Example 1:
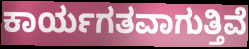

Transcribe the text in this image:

ಕಾರ್ಯಗತವಾಗುತ್ತಿವೆ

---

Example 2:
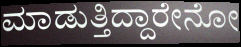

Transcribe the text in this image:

ಮಾಡುತ್ತಿದ್ದಾರೇನೋ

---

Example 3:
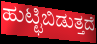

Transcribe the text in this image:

ಹುಟ್ಟಿಬಿಡುತ್ತದೆ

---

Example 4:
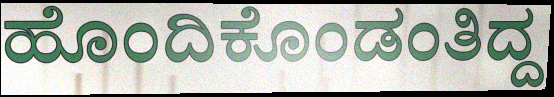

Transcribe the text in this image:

ಹೊಂದಿಕೊಂಡಂತಿದ್ದ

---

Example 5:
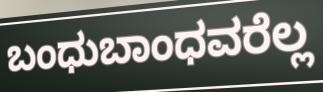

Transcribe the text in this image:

ಬಂಧುಬಾಂಧವರೆಲ್ಲ